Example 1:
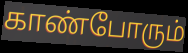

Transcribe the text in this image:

காண்போரும்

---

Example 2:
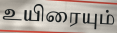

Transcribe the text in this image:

உயிரையும்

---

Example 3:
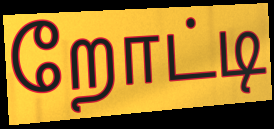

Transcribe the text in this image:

றோட்டி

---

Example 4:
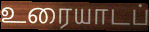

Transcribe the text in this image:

உரையாடப்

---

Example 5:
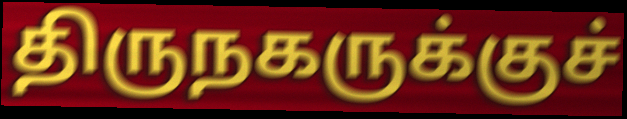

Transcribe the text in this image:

திருநகருக்குச்